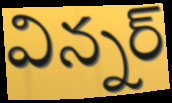
విన్నర్